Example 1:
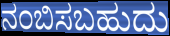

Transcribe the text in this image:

ನಂಬಿಸಬಹುದು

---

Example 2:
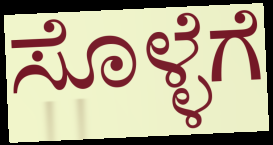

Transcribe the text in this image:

ಸೊಳ್ಳೆಗೆ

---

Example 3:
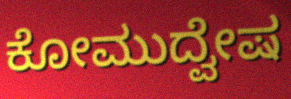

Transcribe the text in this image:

ಕೋಮುದ್ವೇಷ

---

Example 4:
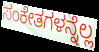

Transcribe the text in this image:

ಸಂಕೇತಗಳನ್ನೆಲ್ಲ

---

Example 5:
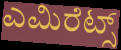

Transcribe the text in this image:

ಎಮಿರೆಟ್ಸ್